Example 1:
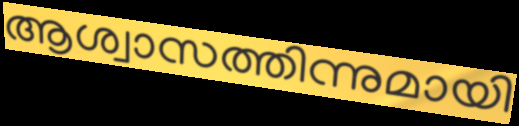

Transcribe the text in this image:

ആശ്വാസത്തിന്നുമായി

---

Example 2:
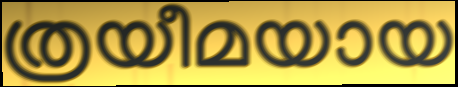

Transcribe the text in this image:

ത്രയീമയായ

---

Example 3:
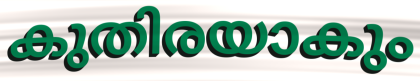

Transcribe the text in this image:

കുതിരയാകും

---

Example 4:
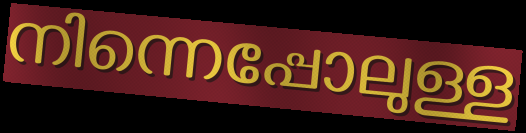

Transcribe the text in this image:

നിന്നെപ്പോലുള്ള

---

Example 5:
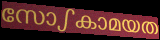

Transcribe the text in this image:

സോഽകാമയത